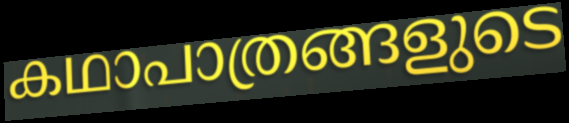
കഥാപാത്രങ്ങളുടെ